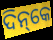
ଦିନ୍‌କେ